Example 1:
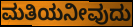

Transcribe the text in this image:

ಮತಿಯನೀವುದು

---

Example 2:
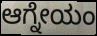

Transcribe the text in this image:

ಆಗ್ನೇಯಂ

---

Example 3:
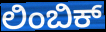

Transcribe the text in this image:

ಲಿಂಬಿಕ್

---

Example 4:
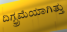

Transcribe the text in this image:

ದಿಗ್ಭ್ರಮೆಯಾಗಿತ್ತು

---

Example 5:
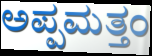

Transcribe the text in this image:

ಅಪ್ಪಮತ್ತಂ